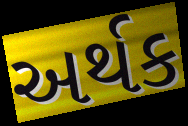
અર્થક